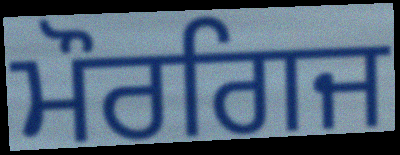
ਮੌਰਗਿਜ